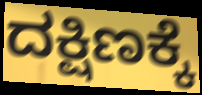
ದಕ್ಷಿಣಕ್ಕೆ